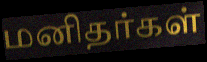
மனிதர்கள்